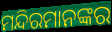
ମନ୍ଦିରମାନଙ୍କର